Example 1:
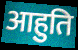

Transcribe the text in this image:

आहुति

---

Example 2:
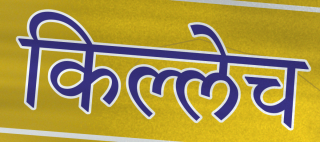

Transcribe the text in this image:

किल्लेच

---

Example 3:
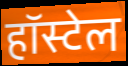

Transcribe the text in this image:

हॉस्टेल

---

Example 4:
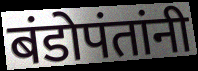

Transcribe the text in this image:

बंडोपंतांनी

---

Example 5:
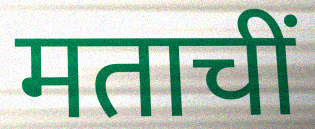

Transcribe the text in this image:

मताचीं